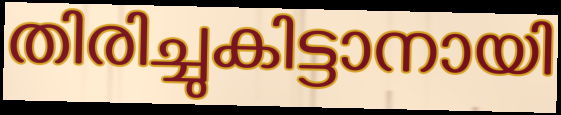
തിരിച്ചുകിട്ടാനായി